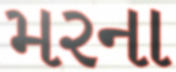
મરના